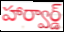
హార్వార్డ్